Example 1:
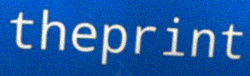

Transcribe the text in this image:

theprint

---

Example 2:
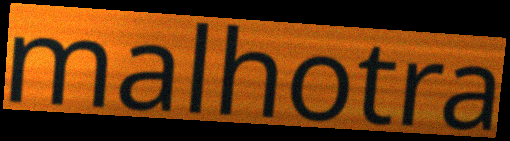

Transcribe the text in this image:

malhotra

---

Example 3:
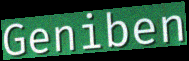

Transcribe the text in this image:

Geniben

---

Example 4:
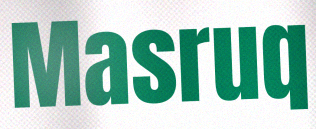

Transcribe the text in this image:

Masruq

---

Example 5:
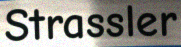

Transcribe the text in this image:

Strassler